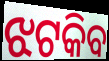
ଝଟକିବ